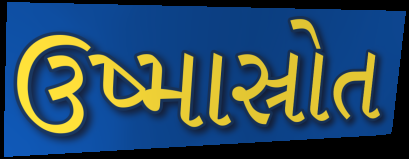
ઉષ્માસ્રોત